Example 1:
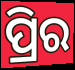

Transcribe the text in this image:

ପ୍ରିର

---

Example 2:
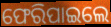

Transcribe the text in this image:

ଫେରିପାଇଲେ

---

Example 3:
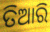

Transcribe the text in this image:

ତିଆରି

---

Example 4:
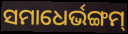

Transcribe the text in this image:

ସମାଧେର୍ଭଙ୍ଗମ୍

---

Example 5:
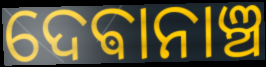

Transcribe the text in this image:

ଦେଵାନାଞ୍ଚ